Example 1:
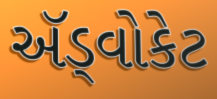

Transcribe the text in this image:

ઍડ્વોકેટ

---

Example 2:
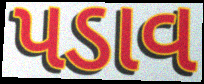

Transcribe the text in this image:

પડાવ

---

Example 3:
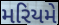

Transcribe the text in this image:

મરિયમે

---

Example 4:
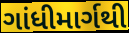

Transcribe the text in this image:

ગાંધીમાર્ગથી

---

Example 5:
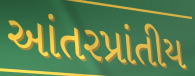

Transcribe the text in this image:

આંતરપ્રાંતીય